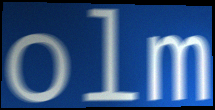
olm